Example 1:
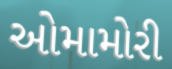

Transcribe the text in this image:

ઓમામોરી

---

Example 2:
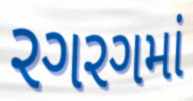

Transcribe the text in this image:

રગરગમાં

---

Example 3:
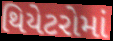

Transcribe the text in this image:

થિયેટરોમાં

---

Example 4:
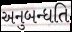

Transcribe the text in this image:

અનુબન્ધતિ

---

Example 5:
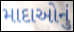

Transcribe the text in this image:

માદાઓનું